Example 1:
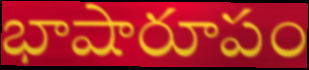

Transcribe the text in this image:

భాషారూపం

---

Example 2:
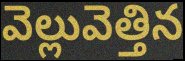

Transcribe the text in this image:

వెల్లువెత్తిన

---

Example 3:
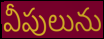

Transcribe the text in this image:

వీపులును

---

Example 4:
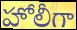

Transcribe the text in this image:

హోలీగా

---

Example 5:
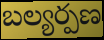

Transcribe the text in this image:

బల్యర్పణ